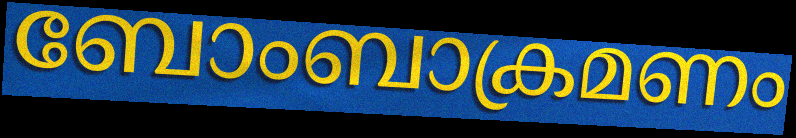
ബോംബാക്രമണം